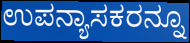
ಉಪನ್ಯಾಸಕರನ್ನೂ